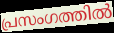
പ്രസംഗത്തിൽ